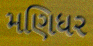
મણિધર